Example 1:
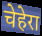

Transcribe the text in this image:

चेहेरा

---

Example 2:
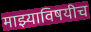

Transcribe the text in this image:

माझ्याविषयीच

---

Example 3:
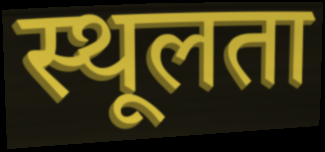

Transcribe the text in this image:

स्थूलता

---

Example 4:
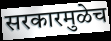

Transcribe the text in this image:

सरकारमुळेच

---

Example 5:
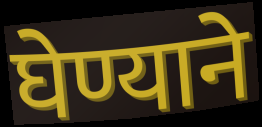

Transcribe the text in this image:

घेण्याने